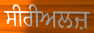
ਸੀਰੀਅਲਜ਼